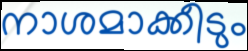
നാശമാക്കീടും